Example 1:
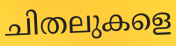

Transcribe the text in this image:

ചിതലുകളെ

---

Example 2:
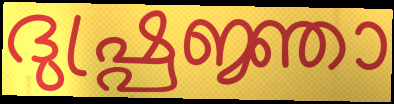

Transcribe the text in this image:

ദുഷ്പ്രജ്ഞാ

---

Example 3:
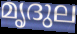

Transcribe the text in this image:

മൃദുല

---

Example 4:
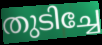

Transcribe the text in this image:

തുടിച്ചേ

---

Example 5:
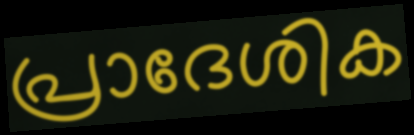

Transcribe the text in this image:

പ്രാദേശിക